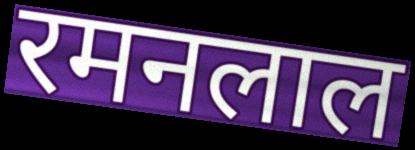
रमनलाल